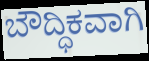
ಬೌದ್ಧಿಕವಾಗಿ